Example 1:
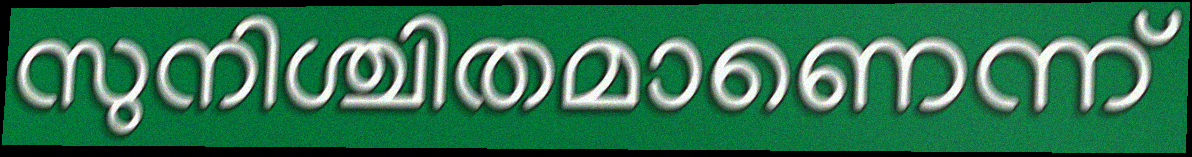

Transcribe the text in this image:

സുനിശ്ചിതമാണെന്ന്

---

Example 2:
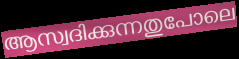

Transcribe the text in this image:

ആസ്വദിക്കുന്നതുപോലെ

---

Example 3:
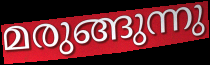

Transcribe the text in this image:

മരുങ്ങുന്നു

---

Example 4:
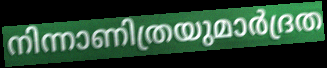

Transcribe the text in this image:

നിന്നാണിത്രയുമാർദ്രത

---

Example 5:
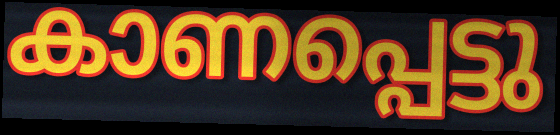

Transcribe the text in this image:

കാണപ്പെട്ടു